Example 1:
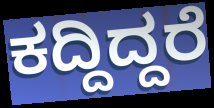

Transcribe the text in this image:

ಕದ್ದಿದ್ದರೆ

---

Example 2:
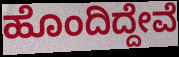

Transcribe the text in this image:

ಹೊಂದಿದ್ದೇವೆ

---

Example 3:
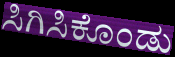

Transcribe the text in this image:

ಸಿಗಿಸಿಕೊಂಡು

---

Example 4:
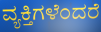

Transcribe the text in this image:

ವ್ಯಕ್ತಿಗಳೆಂದರೆ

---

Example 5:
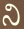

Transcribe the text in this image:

ನಿ